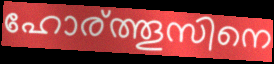
ഹോര്ത്തൂസിനെ